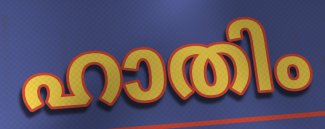
ഹാതിം